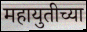
महायुतीच्या